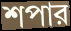
শপার